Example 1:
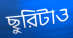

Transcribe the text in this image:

ছুরিটাও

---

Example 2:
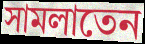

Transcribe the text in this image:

সামলাতেন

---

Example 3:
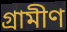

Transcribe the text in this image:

গ্রামীণ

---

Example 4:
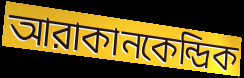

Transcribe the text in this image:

আরাকানকেন্দ্রিক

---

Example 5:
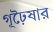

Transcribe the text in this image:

গূঢ়ৈষার